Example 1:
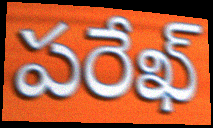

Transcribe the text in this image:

పరేఖ్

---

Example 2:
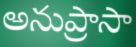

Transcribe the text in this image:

అనుప్రాసా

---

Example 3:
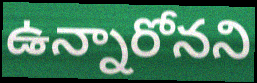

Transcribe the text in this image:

ఉన్నారోనని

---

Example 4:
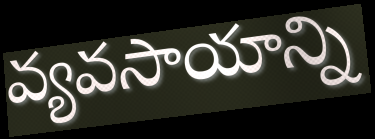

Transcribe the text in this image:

వ్యవసాయాన్ని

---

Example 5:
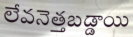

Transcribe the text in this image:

లేవనెత్తబడ్డాయి